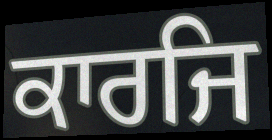
ਕਾਰਜਿ